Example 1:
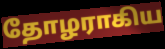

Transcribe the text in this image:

தோழராகிய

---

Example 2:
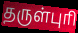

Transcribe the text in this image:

தருள்புரி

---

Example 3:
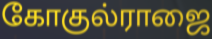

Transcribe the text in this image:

கோகுல்ராஜை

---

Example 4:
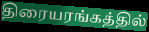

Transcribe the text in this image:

திரையரங்கத்தில்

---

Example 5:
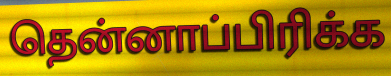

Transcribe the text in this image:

தென்னாப்பிரிக்க